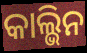
କାଲ୍ଭିନ